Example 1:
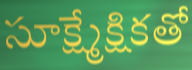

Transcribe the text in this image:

సూక్ష్మేక్షికతో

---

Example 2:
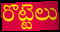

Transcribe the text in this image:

రొట్టెలు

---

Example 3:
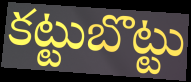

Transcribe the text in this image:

కట్టుబొట్టు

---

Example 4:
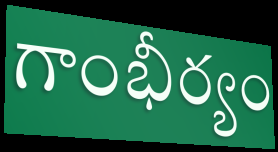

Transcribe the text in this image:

గాంభీర్యం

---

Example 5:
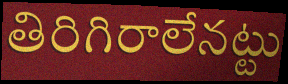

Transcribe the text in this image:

తిరిగిరాలేనట్టు